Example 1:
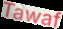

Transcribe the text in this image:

Tawaf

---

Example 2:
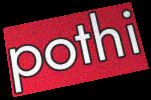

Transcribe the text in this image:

pothi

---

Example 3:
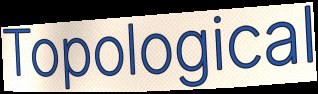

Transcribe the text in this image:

Topological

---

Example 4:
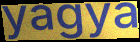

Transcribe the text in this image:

yagya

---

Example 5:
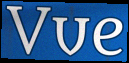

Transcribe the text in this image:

Vue